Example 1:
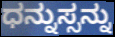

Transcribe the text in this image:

ಧನ್ನುಸ್ಸನ್ನು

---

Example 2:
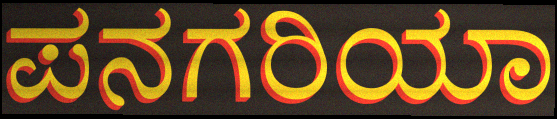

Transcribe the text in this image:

ಪನಗರಿಯಾ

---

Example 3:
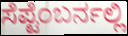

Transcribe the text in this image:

ಸೆಪ್ಟೆಂಬರ್ನಲ್ಲಿ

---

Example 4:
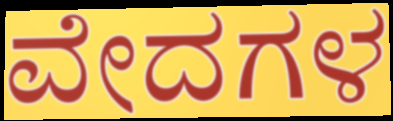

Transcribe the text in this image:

ವೇದಗಳ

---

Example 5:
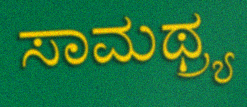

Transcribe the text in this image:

ಸಾಮಥ್ರ್ಯ